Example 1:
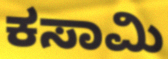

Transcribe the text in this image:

ಕಸಾಮಿ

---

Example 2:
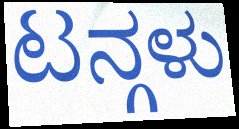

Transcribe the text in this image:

ಟನ್ಗಳು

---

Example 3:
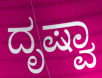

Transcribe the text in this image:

ದೃಷ್ವಾ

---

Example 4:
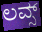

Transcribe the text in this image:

ಲವ್ಸ್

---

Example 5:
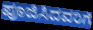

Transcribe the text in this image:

ಪೂಜಿಸಿದವರಿಗೆ